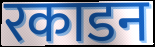
रकाडन